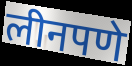
लीनपणे